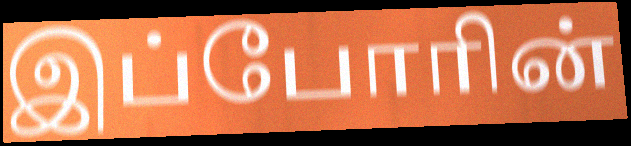
இப்போரின்